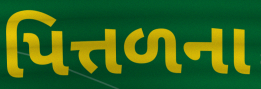
પિત્તળના